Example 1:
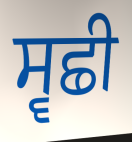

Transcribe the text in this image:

ਸ੍ਵਛੀ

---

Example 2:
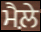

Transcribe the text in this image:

ਮੈਲ਼ੇ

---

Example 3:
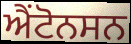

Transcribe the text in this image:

ਐਂਟੋਨਸਨ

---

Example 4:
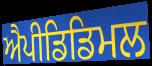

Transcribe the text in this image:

ਐਪੀਡਿਡਿਮਲ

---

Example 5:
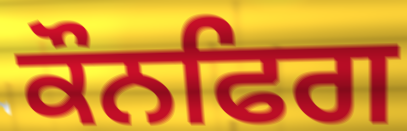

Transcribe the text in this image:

ਕੌਨਫਿਗ